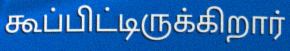
கூப்பிட்டிருக்கிறார்